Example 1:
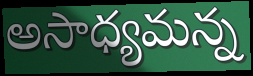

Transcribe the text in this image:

అసాధ్యమన్న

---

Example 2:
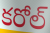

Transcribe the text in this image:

కరోల్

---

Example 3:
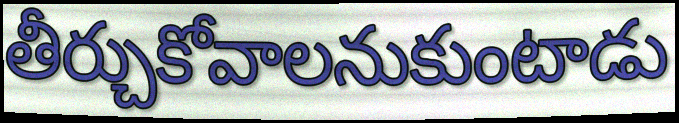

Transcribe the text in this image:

తీర్చుకోవాలనుకుంటాడు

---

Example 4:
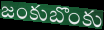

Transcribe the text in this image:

జంకుబొంకు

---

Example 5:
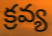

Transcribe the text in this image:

క్రవ్య